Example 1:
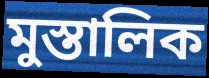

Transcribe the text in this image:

মুস্তালিক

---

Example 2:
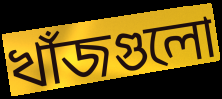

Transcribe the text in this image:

খাঁজগুলো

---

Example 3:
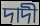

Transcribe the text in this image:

দাদী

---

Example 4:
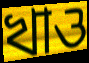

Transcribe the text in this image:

খাও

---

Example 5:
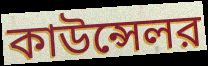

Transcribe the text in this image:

কাউন্সেলর